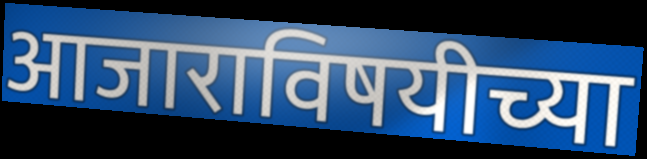
आजाराविषयीच्या